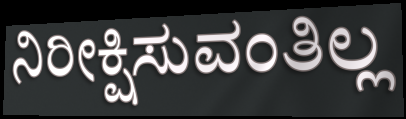
ನಿರೀಕ್ಷಿಸುವಂತಿಲ್ಲ